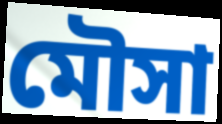
মৌসা